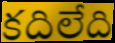
కదిలేది